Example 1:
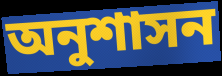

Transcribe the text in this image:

অনুশাসন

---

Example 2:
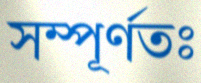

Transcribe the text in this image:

সম্পূর্ণতঃ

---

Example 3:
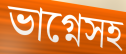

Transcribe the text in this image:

ভাগ্নেসহ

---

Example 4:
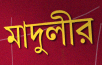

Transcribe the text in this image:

মাদুলীর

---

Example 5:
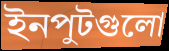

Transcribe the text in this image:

ইনপুটগুলো